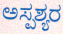
ಅಸ್ಪಶ್ಯರ